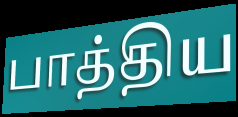
பாத்திய